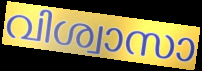
വിശ്വാസാ